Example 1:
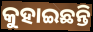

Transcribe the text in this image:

କୁହାଇଛନ୍ତି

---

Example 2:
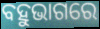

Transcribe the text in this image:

ବହୁଭାଗରେ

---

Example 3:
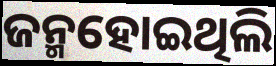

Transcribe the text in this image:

ଜନ୍ମହୋଇଥିଲି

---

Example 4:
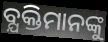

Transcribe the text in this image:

ବ୍ଯକ୍ତିମାନଙ୍କୁ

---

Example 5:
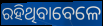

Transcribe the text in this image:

ରହିଥିବାବେଳେ